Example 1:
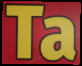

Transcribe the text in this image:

Ta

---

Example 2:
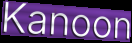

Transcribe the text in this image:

Kanoon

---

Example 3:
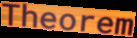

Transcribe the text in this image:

Theorem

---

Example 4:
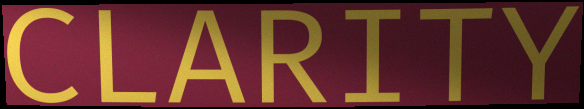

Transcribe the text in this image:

CLARITY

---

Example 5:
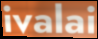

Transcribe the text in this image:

ivalai